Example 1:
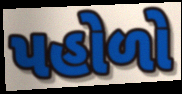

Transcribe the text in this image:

પહોળો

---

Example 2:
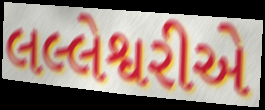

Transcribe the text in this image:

લલ્લેશ્વરીએ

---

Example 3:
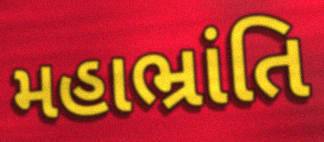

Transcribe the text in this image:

મહાભ્રાંતિ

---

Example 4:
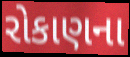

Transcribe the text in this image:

રોકાણના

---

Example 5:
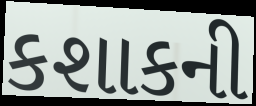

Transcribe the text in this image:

કશાકની